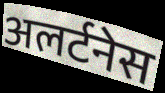
अलर्टनेस